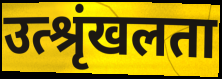
उत्श्रृंखलता